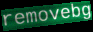
removebg